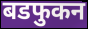
बडफुकन